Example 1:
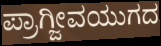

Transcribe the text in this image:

ಪ್ರಾಗ್ಜೀವಯುಗದ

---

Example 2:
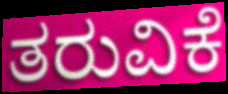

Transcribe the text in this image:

ತರುವಿಕೆ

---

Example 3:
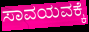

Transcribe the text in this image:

ಸಾವಯವಕ್ಕೆ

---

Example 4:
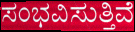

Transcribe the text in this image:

ಸಂಭವಿಸುತ್ತಿವೆ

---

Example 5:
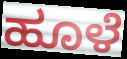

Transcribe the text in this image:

ಹೂಳೆ